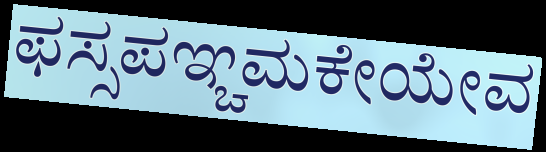
ಫಸ್ಸಪಞ್ಚಮಕೇಯೇವ